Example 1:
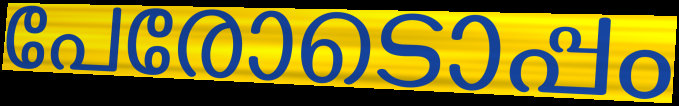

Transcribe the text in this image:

പേരോടൊപ്പം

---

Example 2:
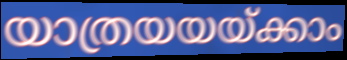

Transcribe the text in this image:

യാത്രയയയ്ക്കാം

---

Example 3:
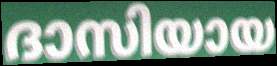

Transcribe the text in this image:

ദാസിയായ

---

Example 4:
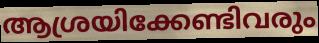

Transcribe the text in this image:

ആശ്രയിക്കേണ്ടിവരും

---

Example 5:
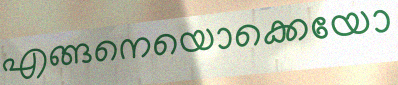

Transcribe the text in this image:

എങ്ങനെയൊക്കെയോ